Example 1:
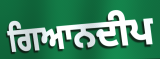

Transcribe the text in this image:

ਗਿਆਨਦੀਪ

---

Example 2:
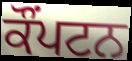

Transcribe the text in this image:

ਕੌਂਪਟਨ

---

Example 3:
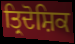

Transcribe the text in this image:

ਤ੍ਰਿਦੋਸ਼ਿਕ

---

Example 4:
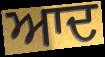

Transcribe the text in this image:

ਆਦ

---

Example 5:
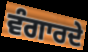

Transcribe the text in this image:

ਵੰਗਾਰਦੇ